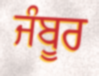
ਜੰਬੂਰ